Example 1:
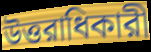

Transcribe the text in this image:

উত্তরাধিকারী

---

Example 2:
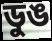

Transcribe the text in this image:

ডুঙ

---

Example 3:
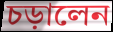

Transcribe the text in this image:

চড়ালেন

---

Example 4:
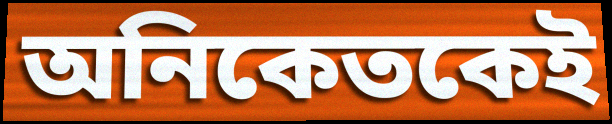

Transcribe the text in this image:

অনিকেতকেই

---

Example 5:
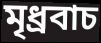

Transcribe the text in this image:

মৃধ্রবাচ